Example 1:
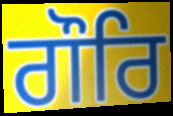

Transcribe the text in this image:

ਗੌਰਿ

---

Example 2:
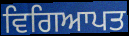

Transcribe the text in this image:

ਵਿਗਿਆਪਤ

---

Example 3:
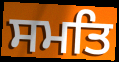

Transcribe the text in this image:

ਸਮਤਿ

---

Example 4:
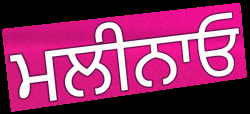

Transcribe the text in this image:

ਮਲੀਨਾਓ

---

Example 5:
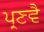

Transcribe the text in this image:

ਪ੍ਰਣਵੈ